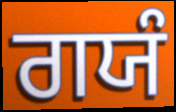
ਗਯੰ